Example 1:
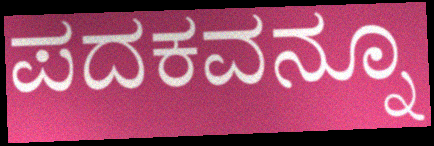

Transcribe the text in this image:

ಪದಕವನ್ನೂ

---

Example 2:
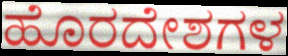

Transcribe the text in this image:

ಹೊರದೇಶಗಳ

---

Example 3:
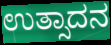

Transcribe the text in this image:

ಉತ್ಸಾದನ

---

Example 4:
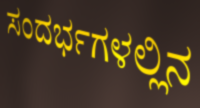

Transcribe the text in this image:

ಸಂದರ್ಭಗಳಲ್ಲಿನ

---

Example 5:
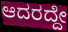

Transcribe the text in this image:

ಆದರದ್ದೇ